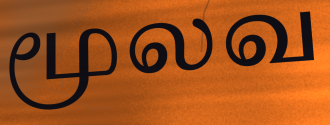
மூலவ